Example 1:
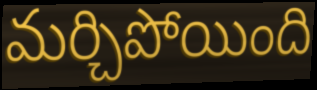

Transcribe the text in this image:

మర్చిపోయింది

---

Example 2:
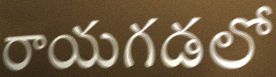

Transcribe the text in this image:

రాయగడలో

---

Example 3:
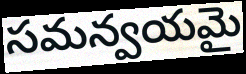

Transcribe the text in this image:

సమన్వయమై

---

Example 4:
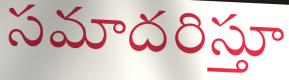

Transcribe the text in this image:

సమాదరిస్తూ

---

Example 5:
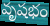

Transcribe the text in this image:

వృషభం